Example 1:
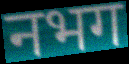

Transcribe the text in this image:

नभग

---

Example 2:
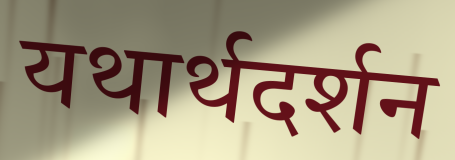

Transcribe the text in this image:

यथार्थदर्शन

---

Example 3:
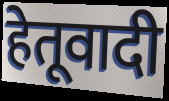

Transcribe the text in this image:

हेतूवादी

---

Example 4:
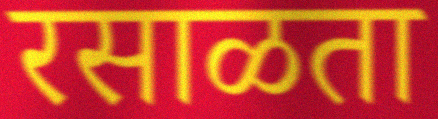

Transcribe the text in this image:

रसाळता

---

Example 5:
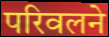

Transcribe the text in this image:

परिवलने